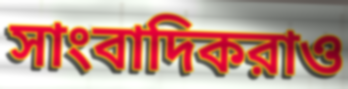
সাংবাদিকরাও